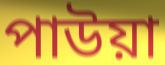
পাউয়া